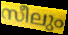
സീലും